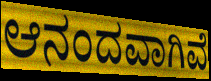
ಆನಂದವಾಗಿವೆ